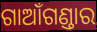
ଗାଆଁଗଣ୍ଡାର